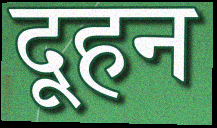
दूहन